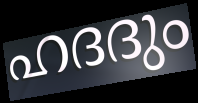
ഹദദും